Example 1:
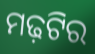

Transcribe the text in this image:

ମଢ଼ଟିର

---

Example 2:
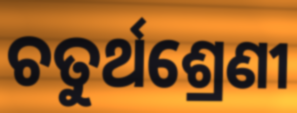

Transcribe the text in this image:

ଚତୁର୍ଥଶ୍ରେଣୀ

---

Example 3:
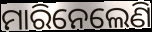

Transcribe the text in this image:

ମାରିନେଲେଣି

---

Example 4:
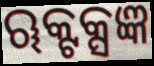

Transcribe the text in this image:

ୠକ୍ଟକ୍ସଜ୍ଞ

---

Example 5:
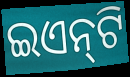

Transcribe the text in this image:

ଇଏନ୍‌ଟି